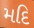
મદિ